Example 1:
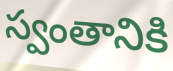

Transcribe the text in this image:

స్వంతానికి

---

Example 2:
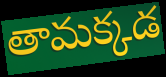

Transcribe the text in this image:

తామక్కడ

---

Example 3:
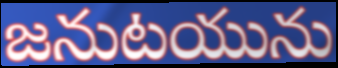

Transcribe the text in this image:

జనుటయును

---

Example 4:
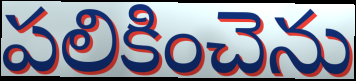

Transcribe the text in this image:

పలికించెను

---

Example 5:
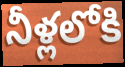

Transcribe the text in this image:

నీళ్లలోకి